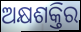
ଅକ୍ଷଶକ୍ତିର